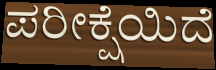
ಪರೀಕ್ಷೆಯಿದೆ